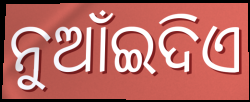
ନୁଆଁଇଦିଏ